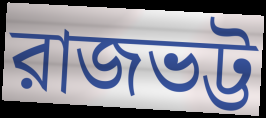
রাজভট্ট